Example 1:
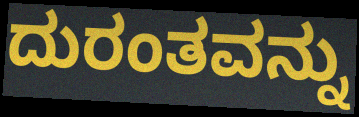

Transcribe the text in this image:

ದುರಂತವನ್ನು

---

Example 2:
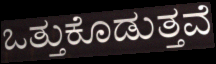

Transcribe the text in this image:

ಒತ್ತುಕೊಡುತ್ತವೆ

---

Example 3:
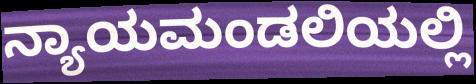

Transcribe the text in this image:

ನ್ಯಾಯಮಂಡಲಿಯಲ್ಲಿ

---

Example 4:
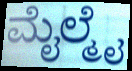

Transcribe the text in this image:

ಮೈಲ್ಮೈ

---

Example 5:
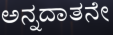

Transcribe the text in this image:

ಅನ್ನದಾತನೇ